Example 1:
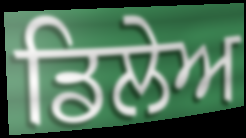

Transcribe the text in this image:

ਡਿਲੇਅ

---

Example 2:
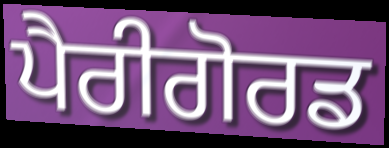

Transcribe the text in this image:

ਪੈਰੀਗੋਰਡ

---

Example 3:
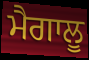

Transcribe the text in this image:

ਮੈਗਾਲੂ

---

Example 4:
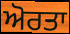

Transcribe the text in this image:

ਅੋਰਤਾ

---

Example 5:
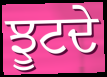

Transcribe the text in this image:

ਝੂਟਦੇ